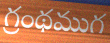
గ్రంథముగ